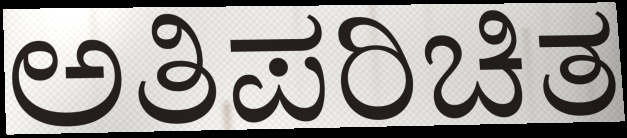
ಅತಿಪರಿಚಿತ